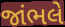
જાંભલે